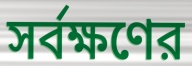
সর্বক্ষণের